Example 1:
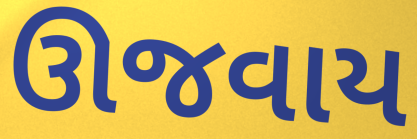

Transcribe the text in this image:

ઊજવાય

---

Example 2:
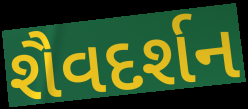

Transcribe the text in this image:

શૈવદર્શન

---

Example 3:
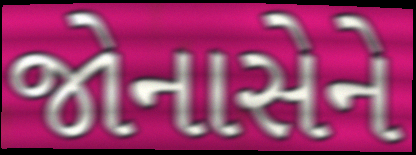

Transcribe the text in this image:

જોનાસેને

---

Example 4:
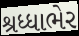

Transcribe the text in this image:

શ્રધ્ધાભેર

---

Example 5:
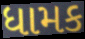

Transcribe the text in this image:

ધામક